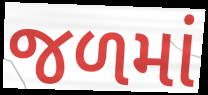
જળમાં